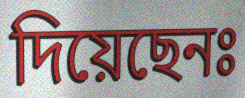
দিয়েছেনঃ